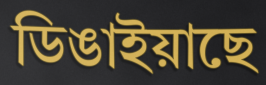
ডিঙাইয়াছে